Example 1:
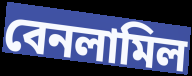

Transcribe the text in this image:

বেনলামিল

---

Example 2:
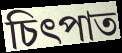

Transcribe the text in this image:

চিৎপাত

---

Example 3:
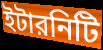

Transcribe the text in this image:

ইটারনিটি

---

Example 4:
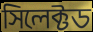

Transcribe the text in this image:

সিলেক্টড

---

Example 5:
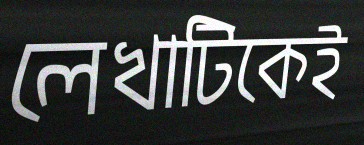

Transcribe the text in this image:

লেখাটিকেই